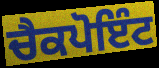
ਚੈਕਪੋਇੰਟ